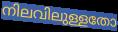
നിലവിലുള്ളതോ